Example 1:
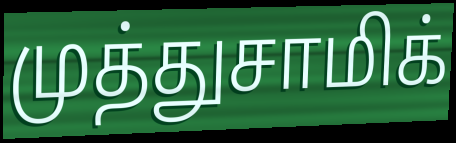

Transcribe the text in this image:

முத்துசாமிக்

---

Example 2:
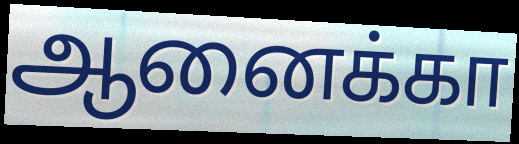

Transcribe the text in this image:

ஆனைக்கா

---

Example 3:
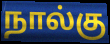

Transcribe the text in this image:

நால்கு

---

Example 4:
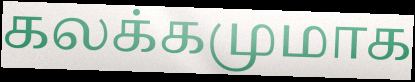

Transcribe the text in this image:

கலக்கமுமாக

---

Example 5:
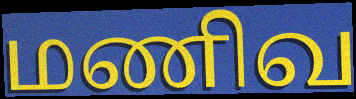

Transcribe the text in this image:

மணிவ